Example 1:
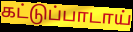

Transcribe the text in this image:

கட்டுப்பாடாய்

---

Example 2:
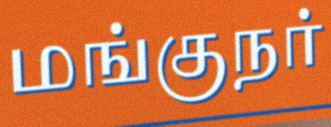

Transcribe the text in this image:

மங்குநர்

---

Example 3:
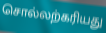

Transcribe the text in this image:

சொல்லற்கரியது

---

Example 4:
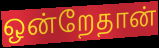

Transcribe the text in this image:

ஒன்றேதான்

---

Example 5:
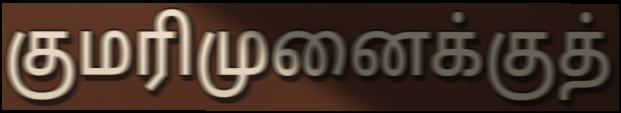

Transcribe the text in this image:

குமரிமுனைக்குத்